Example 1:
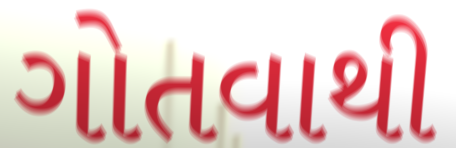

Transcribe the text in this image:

ગોતવાથી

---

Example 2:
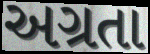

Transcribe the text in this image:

અગ્રતા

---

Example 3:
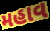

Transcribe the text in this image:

મહાવ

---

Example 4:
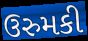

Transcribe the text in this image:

ઉરુમકી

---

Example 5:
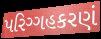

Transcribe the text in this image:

પરિગ્ગહકરણં